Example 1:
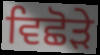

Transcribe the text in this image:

ਵਿਛੋੜੇ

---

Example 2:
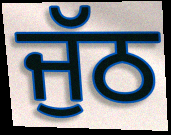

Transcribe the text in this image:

ਜੁੱਠ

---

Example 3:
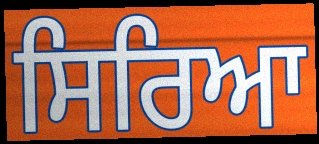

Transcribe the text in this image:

ਸਿਰਿਆ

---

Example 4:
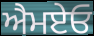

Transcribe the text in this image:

ਐਮਏਓ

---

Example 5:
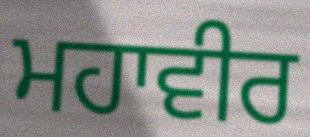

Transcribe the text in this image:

ਮਹਾਵੀਰ